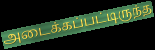
அடைக்கப்பட்டிருந்த